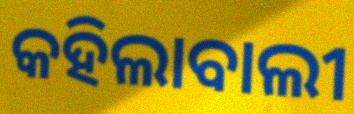
କହିଲାବାଲୀ